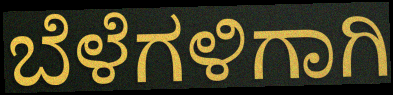
ಬೆಳೆಗಳಿಗಾಗಿ